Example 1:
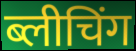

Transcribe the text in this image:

ब्‍लीचिंग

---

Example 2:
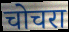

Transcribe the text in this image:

चोचरा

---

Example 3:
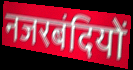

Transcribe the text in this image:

नजरबंदियों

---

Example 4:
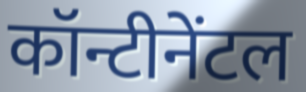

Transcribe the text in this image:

कॉन्टीनेंटल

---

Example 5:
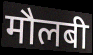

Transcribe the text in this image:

मौलबी